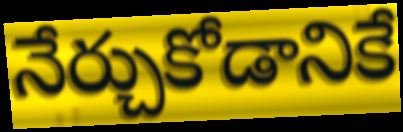
నేర్చుకోడానికే